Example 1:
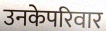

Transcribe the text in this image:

उनकेपरिवार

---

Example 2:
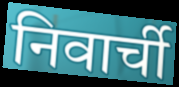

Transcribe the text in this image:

निवार्ची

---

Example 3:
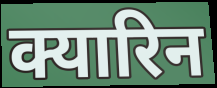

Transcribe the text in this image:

क्यारिन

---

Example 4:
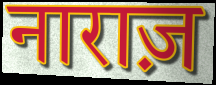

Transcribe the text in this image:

नाराज़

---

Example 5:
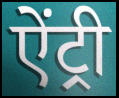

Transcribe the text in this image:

ऐंट्री